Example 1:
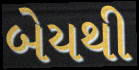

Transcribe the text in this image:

બેયથી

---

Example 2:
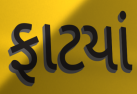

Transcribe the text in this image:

ફાટયાં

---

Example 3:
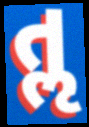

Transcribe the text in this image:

તૢ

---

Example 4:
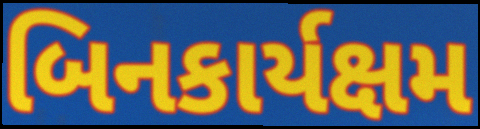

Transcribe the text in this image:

બિનકાર્યક્ષમ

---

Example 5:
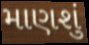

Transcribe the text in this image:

માણશું